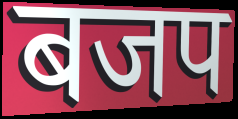
बजप